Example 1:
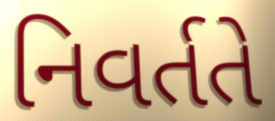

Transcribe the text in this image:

નિવર્તતે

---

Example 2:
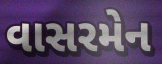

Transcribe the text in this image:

વાસરમેન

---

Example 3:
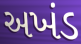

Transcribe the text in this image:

અખંડ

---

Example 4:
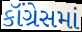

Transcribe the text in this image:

કૉંગ્રેસમાં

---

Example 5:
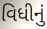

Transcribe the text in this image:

વિધીનું